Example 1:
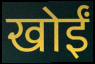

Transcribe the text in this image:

खोईं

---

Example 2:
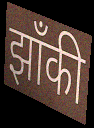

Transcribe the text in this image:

झाँकी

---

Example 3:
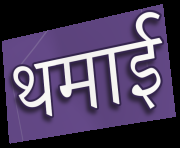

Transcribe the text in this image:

थमाई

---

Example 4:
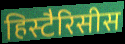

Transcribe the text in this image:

हिस्टैरिसीस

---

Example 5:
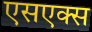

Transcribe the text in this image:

एसएक्स